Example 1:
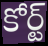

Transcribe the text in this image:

కోర్ట్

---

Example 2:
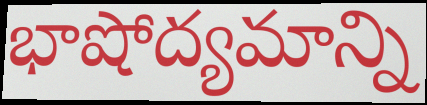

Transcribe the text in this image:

భాషోద్యమాన్ని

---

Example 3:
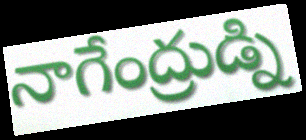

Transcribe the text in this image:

నాగేంద్రుడ్ని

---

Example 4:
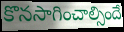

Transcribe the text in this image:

కొనసాగించాల్సిందే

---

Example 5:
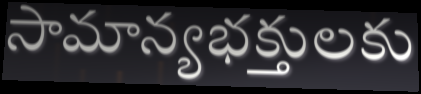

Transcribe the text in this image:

సామాన్యభక్తులకు